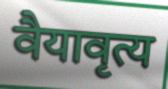
वैयावृत्य